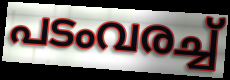
പടംവരച്ച്